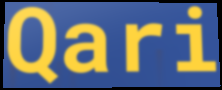
Qari